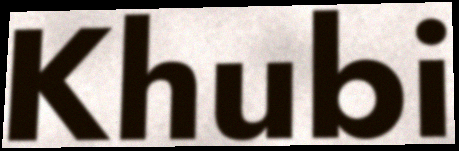
Khubi